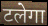
टलेगा